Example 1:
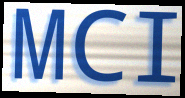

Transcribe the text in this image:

MCI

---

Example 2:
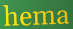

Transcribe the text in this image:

hema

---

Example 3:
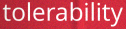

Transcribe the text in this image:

tolerability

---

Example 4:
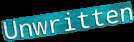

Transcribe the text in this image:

Unwritten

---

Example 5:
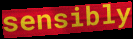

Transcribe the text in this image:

sensibly